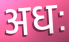
अधः